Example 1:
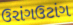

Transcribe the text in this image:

ઉરાંગઉટાંગ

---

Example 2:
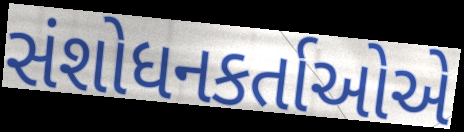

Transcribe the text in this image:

સંશોધનકર્તાઓએ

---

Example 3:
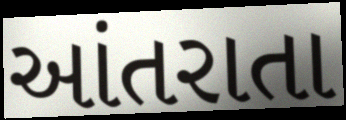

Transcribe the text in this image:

આંતરાતા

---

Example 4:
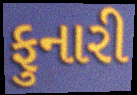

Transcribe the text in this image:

ફુનારી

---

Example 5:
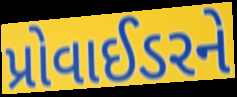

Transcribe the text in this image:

પ્રોવાઈડરને